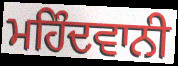
ਮਹਿੰਦਵਾਨੀ